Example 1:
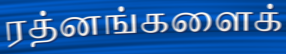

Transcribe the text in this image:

ரத்னங்களைக்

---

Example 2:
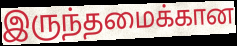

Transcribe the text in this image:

இருந்தமைக்கான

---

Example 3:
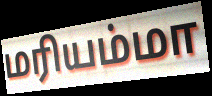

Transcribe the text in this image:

மரியம்மா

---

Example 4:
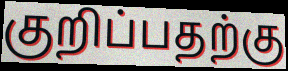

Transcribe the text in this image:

குறிப்பதற்கு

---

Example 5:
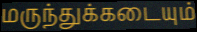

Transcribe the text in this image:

மருந்துக்கடையும்